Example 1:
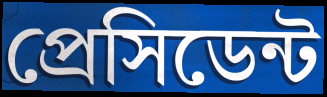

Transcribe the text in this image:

প্রেসিডেন্ট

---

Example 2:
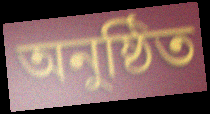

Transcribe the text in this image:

অনুষ্ঠিত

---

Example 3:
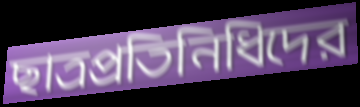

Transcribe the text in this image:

ছাত্রপ্রতিনিধিদের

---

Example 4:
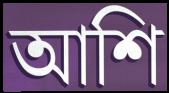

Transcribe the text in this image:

আশি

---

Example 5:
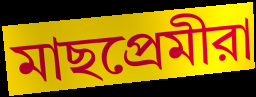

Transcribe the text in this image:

মাছপ্রেমীরা